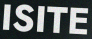
ISITE